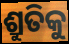
ଶ୍ରୁତିକୁ